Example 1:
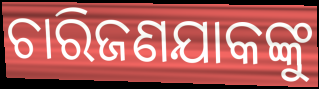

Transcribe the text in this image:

ଚାରିଜଣଯାକଙ୍କୁ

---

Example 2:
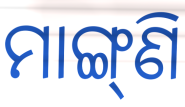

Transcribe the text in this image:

ମାଙ୍ଗ୍‌ଣି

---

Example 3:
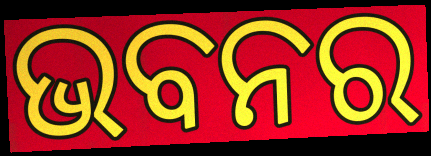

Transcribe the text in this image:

ଭବନର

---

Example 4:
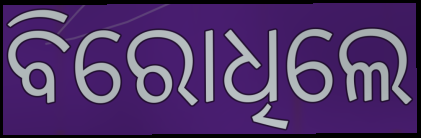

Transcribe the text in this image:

ବିରୋଧିଲେ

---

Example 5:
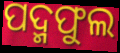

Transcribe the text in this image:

ପଦ୍ମଫୁଲ